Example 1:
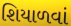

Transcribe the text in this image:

શિયાળવાં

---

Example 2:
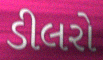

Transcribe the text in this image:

ડીલરો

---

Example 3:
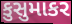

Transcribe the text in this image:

કુસુમાકર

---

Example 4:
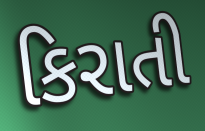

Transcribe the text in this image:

કિરાતી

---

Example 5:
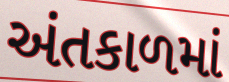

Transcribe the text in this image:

અંતકાળમાં